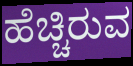
ಹೆಚ್ಚಿರುವ